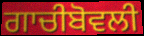
ਗਾਚੀਬੋਵਲੀ